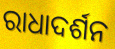
ରାଧାଦର୍ଶନ